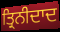
ਤ੍ਰਿਨੀਦਾਦ